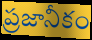
ప్రజానీకం